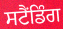
ਸਟੈਂਡਿੰਗ